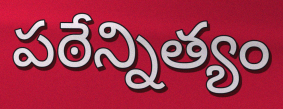
పఠేన్నిత్యం